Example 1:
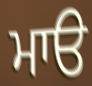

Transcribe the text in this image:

ਮਾੳ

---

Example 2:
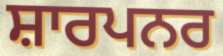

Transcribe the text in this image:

ਸ਼ਾਰਪਨਰ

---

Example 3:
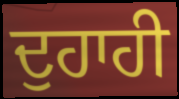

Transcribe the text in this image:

ਦੁਹਾਹੀ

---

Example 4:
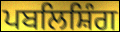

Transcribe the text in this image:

ਪਬਲਿਸ਼ਿੰਗ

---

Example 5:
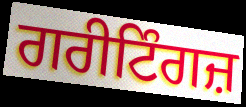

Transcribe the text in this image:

ਗਰੀਟਿੰਗਜ਼